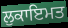
ਲੁਕਾਇਮਤ